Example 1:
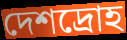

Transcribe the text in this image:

দেশদ্রোহ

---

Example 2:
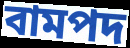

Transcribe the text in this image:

বামপদ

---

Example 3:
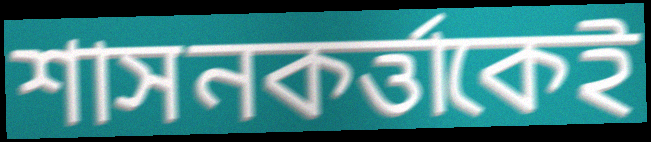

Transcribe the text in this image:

শাসনকর্ত্তাকেই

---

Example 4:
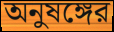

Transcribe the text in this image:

অনুষঙ্গের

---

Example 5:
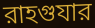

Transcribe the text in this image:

রাহগুযার